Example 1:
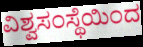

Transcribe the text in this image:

ವಿಶ್ವಸಂಸ್ಥೆಯಿಂದ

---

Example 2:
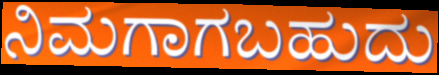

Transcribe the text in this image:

ನಿಮಗಾಗಬಹುದು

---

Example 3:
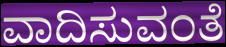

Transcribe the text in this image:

ವಾದಿಸುವಂತೆ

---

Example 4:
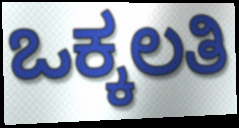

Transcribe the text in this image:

ಒಕ್ಕಲತಿ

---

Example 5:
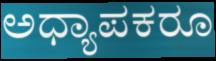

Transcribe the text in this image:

ಅಧ್ಯಾಪಕರೂ